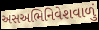
અસઅભિનિવેશવાળું